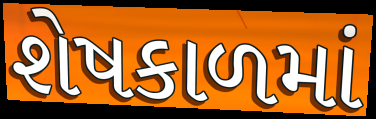
શેષકાળમાં